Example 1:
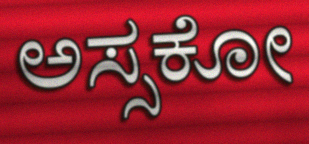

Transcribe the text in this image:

ಅಸ್ಸಕೋ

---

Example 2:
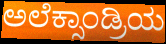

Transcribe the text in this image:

ಅಲೆಕ್ಸಾಂಡ್ರಿಯ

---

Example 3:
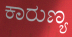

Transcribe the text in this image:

ಕಾರುಣ್ಯ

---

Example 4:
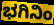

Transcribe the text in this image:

ಭಗಿನಿಂ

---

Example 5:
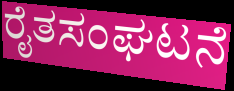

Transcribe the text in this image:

ರೈತಸಂಘಟನೆ